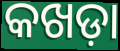
କଖଡ଼ା